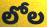
లోల